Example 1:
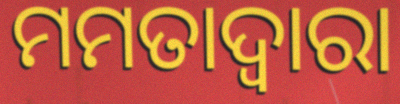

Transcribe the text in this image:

ମମତାଦ୍ୱାରା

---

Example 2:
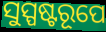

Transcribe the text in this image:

ସୁସ୍ପଷ୍ଟରୂପେ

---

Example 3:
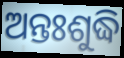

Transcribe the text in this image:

ଅନ୍ତଃଶୁଦ୍ଧି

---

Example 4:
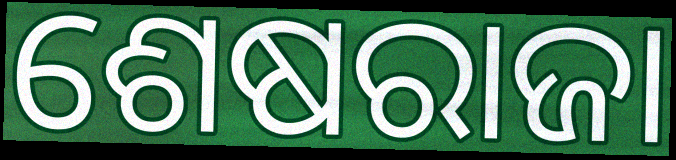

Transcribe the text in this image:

ଶେଷରାଜା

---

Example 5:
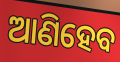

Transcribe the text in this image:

ଆଣିହେବ